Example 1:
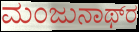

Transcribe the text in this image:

ಮಂಜುನಾಥ್‌ರ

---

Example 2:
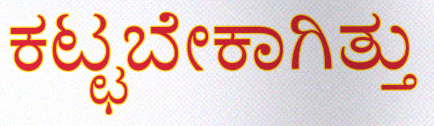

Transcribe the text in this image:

ಕಟ್ಟಬೇಕಾಗಿತ್ತು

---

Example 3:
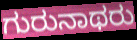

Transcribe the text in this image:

ಗುರುನಾಥರು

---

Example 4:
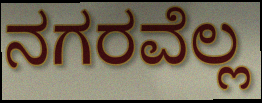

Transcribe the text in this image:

ನಗರವೆಲ್ಲ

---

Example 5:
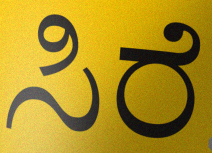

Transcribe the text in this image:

ಸಿರೆ